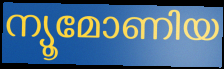
ന്യൂമോണിയ